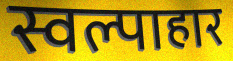
स्‍वल्‍पाहार